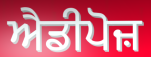
ਐਡੀਪੋਜ਼